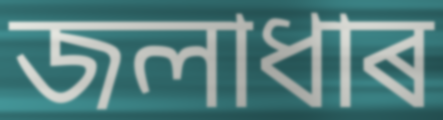
জলাধাৰ